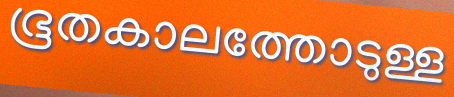
ഭൂതകാലത്തോടുള്ള